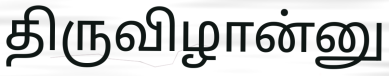
திருவிழான்னு